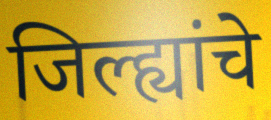
जिल्ह्यांचे